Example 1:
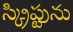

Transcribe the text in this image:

స్క్రిప్టును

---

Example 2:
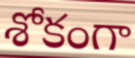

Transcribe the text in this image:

శోకంగా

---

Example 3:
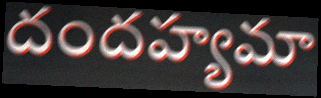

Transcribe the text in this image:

దందహ్యమా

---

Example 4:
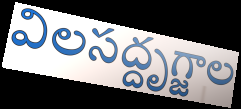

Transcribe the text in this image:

విలసద్దృగ్జాల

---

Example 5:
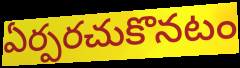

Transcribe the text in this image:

ఏర్పరచుకొనటం